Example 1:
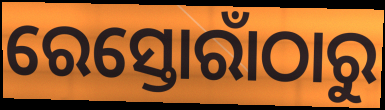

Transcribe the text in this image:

ରେସ୍ତୋରାଁଠାରୁ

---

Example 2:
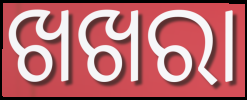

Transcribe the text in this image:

ଖଖରା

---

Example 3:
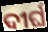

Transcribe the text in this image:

ଦୀର୍ଘ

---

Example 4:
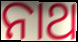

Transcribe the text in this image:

ନାଥ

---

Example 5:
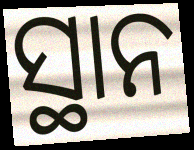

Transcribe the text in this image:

ସ୍ଥାନ